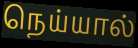
நெய்யால்